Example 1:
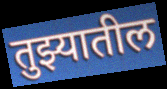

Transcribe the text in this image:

तुझ्यातील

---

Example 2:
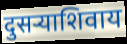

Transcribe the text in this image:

दुसऱ्याशिवाय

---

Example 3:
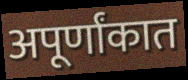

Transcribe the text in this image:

अपूर्णांकात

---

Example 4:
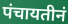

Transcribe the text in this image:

पंचायतीनं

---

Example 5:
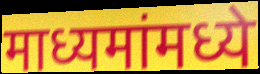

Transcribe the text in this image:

माध्यमांमध्ये